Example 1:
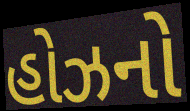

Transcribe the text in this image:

હોઝનો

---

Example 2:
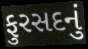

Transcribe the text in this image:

ફુરસદનું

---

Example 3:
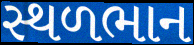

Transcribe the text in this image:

સ્થળભાન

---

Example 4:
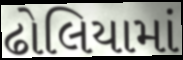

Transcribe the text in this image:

ઢોલિયામાં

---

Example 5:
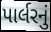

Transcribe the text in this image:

પાર્લરનું